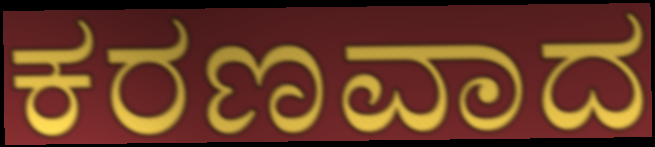
ಕರಣವಾದ